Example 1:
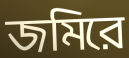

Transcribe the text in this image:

জমিরে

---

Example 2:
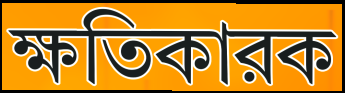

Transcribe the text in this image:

ক্ষতিকারক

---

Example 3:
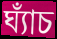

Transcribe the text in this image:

ঘ্যাঁচ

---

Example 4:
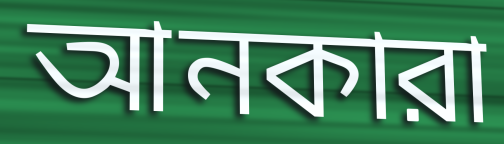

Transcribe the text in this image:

আনকারা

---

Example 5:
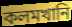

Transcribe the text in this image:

কলমখানি